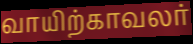
வாயிற்காவலர்